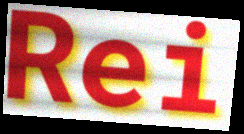
Rei